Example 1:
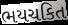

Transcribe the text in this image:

ભયચકિત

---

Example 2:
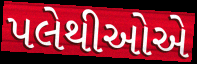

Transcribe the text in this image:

પલેથીઓએ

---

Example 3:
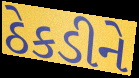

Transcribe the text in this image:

ઠેકડીને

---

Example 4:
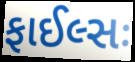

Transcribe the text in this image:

ફાઈલ્સઃ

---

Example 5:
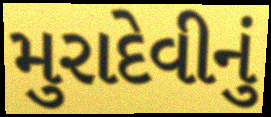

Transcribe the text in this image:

મુરાદેવીનું